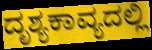
ದೃಶ್ಯಕಾವ್ಯದಲ್ಲಿ